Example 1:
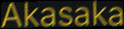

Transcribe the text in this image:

Akasaka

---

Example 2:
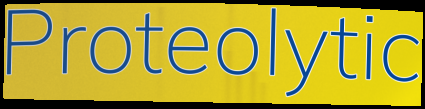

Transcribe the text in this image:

Proteolytic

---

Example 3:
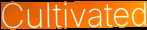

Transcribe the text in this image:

Cultivated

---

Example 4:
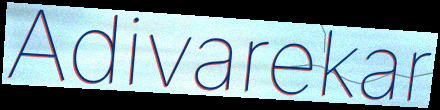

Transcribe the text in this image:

Adivarekar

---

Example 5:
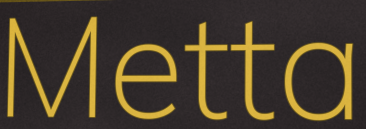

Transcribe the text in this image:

Metta